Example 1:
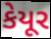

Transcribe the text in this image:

કેયૂર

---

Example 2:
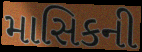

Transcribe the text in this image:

માસિકની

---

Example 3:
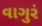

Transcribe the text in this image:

વાગુરં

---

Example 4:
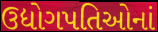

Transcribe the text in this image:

ઉદ્યોગપતિઓનાં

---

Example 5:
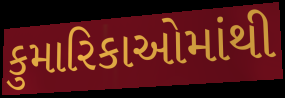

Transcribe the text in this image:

કુમારિકાઓમાંથી